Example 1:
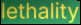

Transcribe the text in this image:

lethality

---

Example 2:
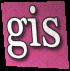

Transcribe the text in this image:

gis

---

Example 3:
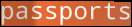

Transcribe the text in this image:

passports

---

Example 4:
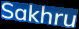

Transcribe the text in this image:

Sakhru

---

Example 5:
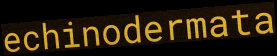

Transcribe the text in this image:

echinodermata